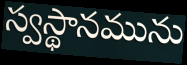
స్వస్థానమును